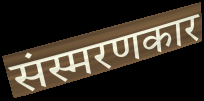
संस्मरणकार